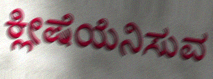
ಕ್ಲೀಷೆಯೆನಿಸುವ